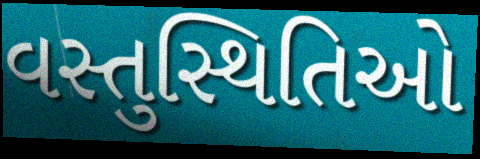
વસ્તુસ્થિતિઓ